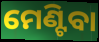
ମେଣ୍ଟିବା